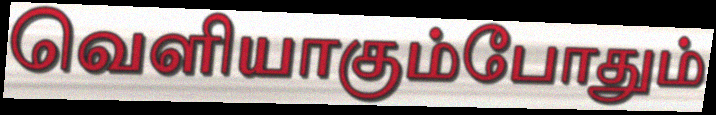
வெளியாகும்போதும்